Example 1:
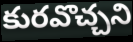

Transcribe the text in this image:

కురవొచ్చని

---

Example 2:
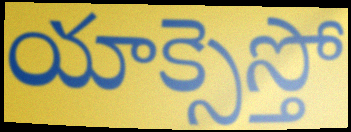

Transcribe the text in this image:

యాక్సెస్తో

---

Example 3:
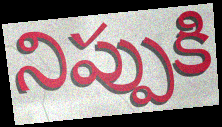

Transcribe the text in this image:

నిప్పుకి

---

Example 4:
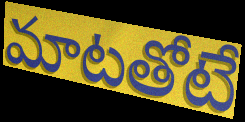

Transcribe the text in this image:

మాటతోటే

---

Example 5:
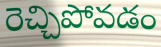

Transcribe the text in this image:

రెచ్చిపోవడం